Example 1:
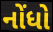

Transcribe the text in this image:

નોંધો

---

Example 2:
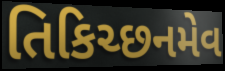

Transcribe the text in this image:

તિકિચ્છનમેવ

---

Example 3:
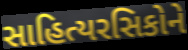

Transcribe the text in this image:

સાહિત્યરસિકોને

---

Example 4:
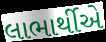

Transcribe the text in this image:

લાભાર્થીએ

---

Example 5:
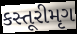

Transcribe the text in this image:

કસ્તૂરીમૃગ